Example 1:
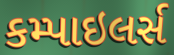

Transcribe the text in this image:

કમ્પાઇલર્સ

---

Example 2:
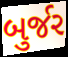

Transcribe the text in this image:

બુર્જર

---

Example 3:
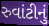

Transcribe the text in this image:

રુવાંટીનું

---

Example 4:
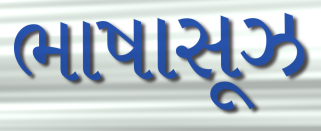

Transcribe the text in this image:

ભાષાસૂઝ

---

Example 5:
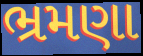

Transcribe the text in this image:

ભ્રમણા